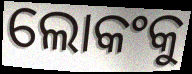
ଲୋକଂକୁ